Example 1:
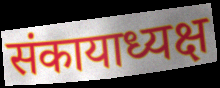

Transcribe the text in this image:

संकायाध्यक्ष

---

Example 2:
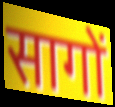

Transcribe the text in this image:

सागों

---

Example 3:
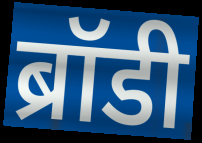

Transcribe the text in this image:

ब्रॉडी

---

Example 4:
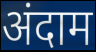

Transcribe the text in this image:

अंदाम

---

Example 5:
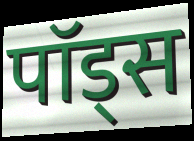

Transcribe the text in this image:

पॉड्स